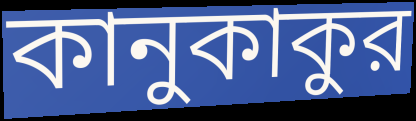
কানুকাকুর